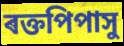
ৰক্তপিপাসু